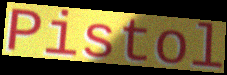
Pistol